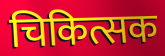
चिकित्सक